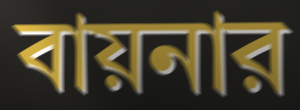
বায়নার